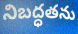
నిబద్ధతను